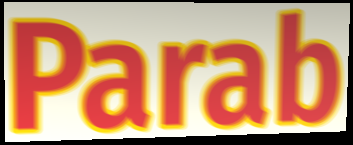
Parab